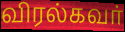
விரல்கவர்